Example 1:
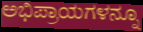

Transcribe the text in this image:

ಅಭಿಪ್ರಾಯಗಳನ್ನೂ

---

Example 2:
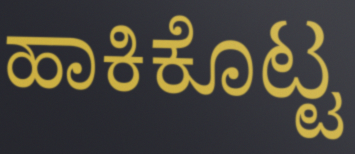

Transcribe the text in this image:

ಹಾಕಿಕೊಟ್ಟ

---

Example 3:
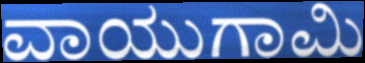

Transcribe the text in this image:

ವಾಯುಗಾಮಿ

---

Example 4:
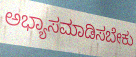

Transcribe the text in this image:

ಅಭ್ಯಾಸಮಾಡಿಸಬೇಕು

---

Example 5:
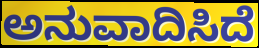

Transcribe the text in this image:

ಅನುವಾದಿಸಿದೆ